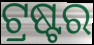
ଟ୍ରଷ୍ଟର